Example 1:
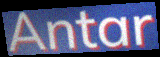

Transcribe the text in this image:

Antar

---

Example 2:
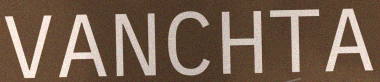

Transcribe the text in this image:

VANCHTA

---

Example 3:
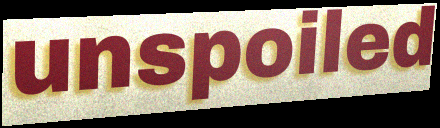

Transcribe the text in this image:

unspoiled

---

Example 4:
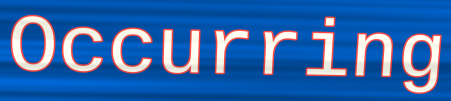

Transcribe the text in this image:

Occurring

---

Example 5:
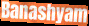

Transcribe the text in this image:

Banashyam